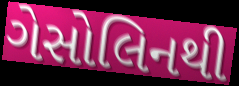
ગેસોલિનથી